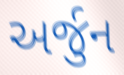
અર્જુન